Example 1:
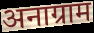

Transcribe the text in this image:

अनाग्राम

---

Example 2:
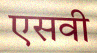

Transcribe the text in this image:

एसवी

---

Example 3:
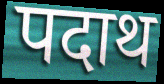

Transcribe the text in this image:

पदाथ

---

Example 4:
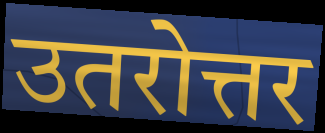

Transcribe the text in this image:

उतरोत्तर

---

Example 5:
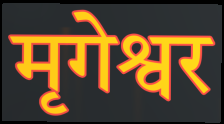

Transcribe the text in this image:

मृगेश्वर